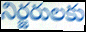
నిర్జరులకు